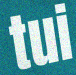
tui